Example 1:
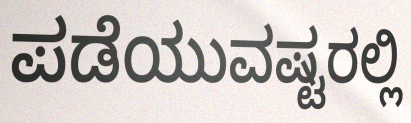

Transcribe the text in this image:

ಪಡೆಯುವಷ್ಟರಲ್ಲಿ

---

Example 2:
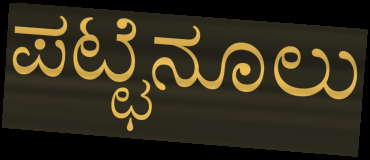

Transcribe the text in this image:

ಪಟ್ಟೆನೂಲು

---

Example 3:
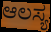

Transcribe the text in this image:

ಆಲಸ್ಯ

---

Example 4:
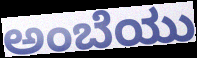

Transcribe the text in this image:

ಅಂಬೆಯು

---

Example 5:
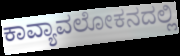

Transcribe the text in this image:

ಕಾವ್ಯಾವಲೋಕನದಲ್ಲಿ